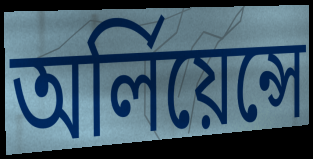
অর্লিয়েন্সে